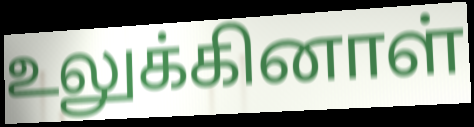
உலுக்கினாள்